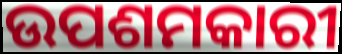
ଉପଶମକାରୀ